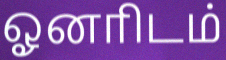
ஓனரிடம்